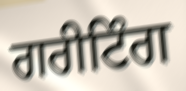
ਗਰੀਟਿੰਗ